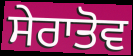
ਸੇਰਾਤੋਵ